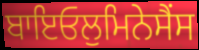
ਬਾਇਓਲੁਮਿਨੇਸੈਂਸ